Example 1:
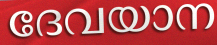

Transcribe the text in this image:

ദേവയാന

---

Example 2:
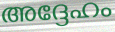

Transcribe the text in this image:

അദ്ദേഹം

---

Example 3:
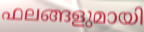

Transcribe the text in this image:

ഫലങ്ങളുമായി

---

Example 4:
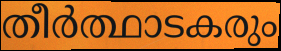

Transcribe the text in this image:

തീർത്ഥാടകരും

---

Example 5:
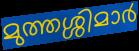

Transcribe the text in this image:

മുത്തശ്ശിമാർ